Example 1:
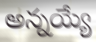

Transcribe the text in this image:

అన్నయ్యే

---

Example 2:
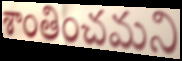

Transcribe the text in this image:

శాంతించమని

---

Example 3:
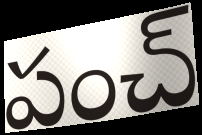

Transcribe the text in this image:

పంచ్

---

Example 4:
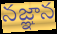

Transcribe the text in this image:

నజ్ఞాన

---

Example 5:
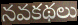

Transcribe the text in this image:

నవకథలు